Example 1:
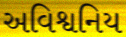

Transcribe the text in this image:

અવિશ્વનિય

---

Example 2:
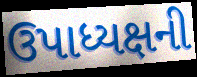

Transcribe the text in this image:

ઉપાધ્યક્ષની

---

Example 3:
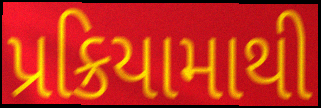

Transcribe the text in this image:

પ્રક્રિયામાથી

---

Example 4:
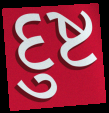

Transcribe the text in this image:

દુષ્ટ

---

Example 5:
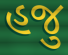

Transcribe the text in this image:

હજુ